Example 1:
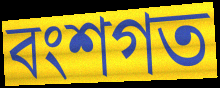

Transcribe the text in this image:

বংশগত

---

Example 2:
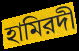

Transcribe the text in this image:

হামিরদী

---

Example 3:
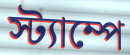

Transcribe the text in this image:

স্ট্যাম্পে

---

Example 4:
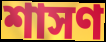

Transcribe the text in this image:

শাসণ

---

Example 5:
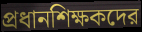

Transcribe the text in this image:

প্রধানশিক্ষকদের